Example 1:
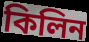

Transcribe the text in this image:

কিলিন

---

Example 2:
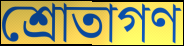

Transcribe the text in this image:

শ্রোতাগণ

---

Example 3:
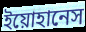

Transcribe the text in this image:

ইয়োহানেস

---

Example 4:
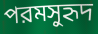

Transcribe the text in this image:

পরমসুহৃদ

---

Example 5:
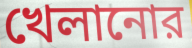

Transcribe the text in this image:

খেলানোর